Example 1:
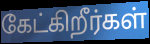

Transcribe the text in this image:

கேட்கிறீர்கள்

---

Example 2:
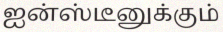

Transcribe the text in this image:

ஐன்ஸ்டீனுக்கும்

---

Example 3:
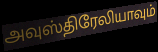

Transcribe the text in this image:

அவுஸ்திரேலியாவும்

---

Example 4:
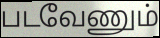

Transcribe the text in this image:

படவேணும்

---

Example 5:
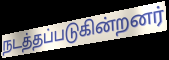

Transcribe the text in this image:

நடத்தப்படுகின்றனர்